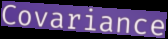
Covariance